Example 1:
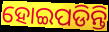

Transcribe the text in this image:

ହୋଇପଡିନ୍ତି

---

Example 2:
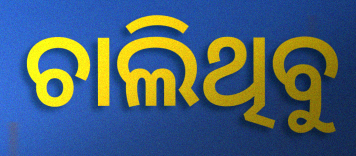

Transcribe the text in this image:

ଚାଲିଥିବୁ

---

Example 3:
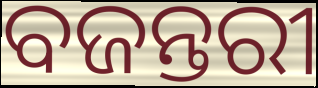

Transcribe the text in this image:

ବଜନ୍ତରୀ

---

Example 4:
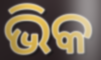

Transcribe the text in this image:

ଭିକ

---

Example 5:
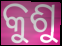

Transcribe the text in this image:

କୁଶୁ